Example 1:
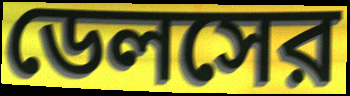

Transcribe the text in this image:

ডেলসের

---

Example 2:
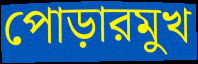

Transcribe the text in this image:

পোড়ারমুখ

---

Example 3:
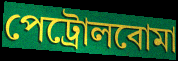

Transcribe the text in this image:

পেট্রোলবোমা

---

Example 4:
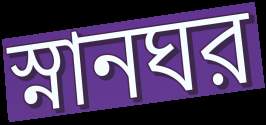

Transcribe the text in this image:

স্নানঘর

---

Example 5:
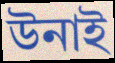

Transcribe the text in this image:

উনাই